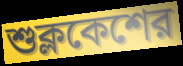
শুক্লকেশের